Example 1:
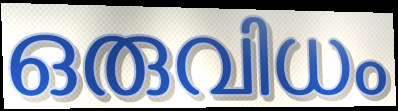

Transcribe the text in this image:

ഒരുവിധം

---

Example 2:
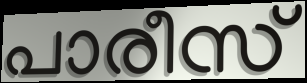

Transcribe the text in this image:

പാരീസ്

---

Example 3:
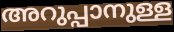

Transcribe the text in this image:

അറുപ്പാനുള്ള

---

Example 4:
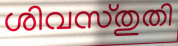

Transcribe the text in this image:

ശിവസ്തുതി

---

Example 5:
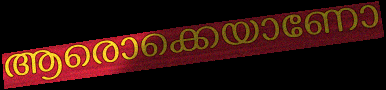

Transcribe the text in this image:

ആരൊക്കെയാണോ